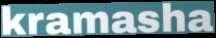
kramasha